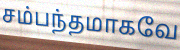
சம்பந்தமாகவே